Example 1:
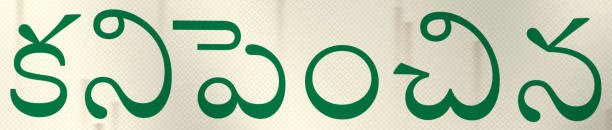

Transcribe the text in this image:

కనిపెంచిన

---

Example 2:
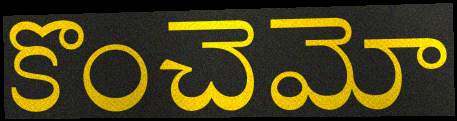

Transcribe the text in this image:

కొంచెమో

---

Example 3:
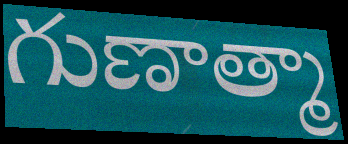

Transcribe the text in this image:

గుణాత్మా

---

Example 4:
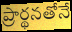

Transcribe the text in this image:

ప్రార్థనతోనే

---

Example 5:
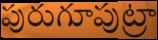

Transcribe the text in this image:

పురుగూపుట్రా